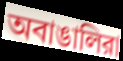
অবাঙালিরা